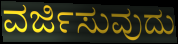
ವರ್ಜಿಸುವುದು